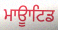
ਮਾਊਾਟਿਡ